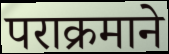
पराक्रमाने